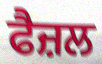
ਫੈਜ਼ਲ